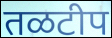
तळटीप